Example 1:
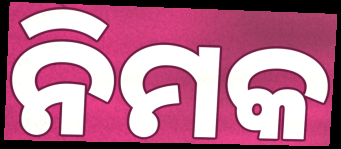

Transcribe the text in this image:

ନିମକ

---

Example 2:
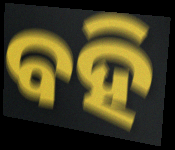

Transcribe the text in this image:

ବହି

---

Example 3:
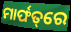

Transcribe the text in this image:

ମାର୍ଫତ୍‌ରେ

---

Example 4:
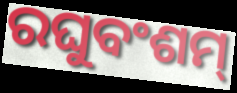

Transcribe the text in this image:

ରଘୁବଂଶମ୍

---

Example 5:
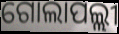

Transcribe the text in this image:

ଗୋଲାପଲ୍ଲୀ